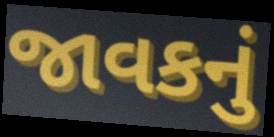
જાવકનું